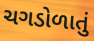
ચગડોળાતું